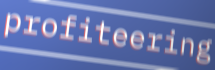
profiteering